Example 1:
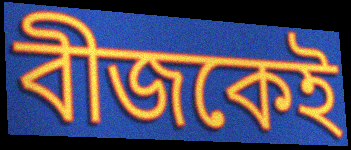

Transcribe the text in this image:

বীজকেই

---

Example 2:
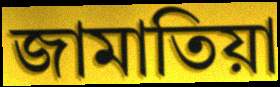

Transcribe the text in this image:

জামাতিয়া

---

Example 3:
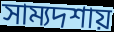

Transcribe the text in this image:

সাম্যদশায়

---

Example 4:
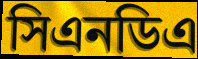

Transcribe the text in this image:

সিএনডিএ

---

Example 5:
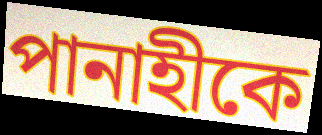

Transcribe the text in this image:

পানাহীকে